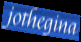
jothegina